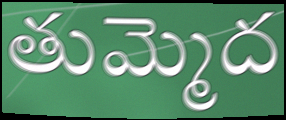
తుమ్మెద